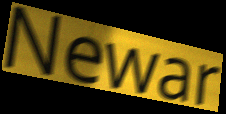
Newar